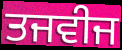
ਤਜਵੀਜ